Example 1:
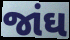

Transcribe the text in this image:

જાંઘ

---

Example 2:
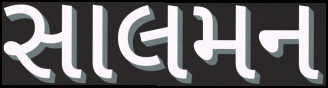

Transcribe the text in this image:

સાલમન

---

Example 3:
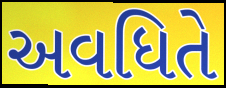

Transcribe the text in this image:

અવધિતે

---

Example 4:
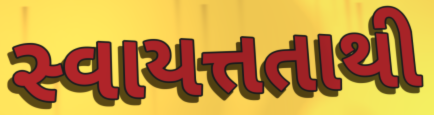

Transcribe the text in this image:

સ્વાયત્તતાથી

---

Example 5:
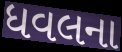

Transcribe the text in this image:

ધવલના